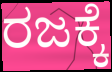
ರಜಕ್ಕೆ